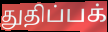
துதிப்பக்